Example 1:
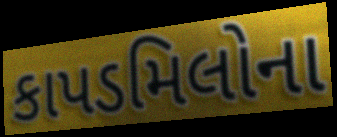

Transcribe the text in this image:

કાપડમિલોના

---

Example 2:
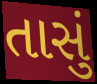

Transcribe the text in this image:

તાસું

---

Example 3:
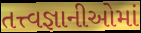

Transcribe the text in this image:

તત્ત્વજ્ઞાનીઓમાં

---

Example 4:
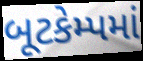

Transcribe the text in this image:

બૂટકેમ્પમાં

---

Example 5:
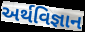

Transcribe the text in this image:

અર્થવિજ્ઞાન